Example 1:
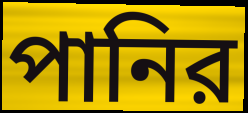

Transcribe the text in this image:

পানির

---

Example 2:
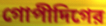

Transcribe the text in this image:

গোপীদিগের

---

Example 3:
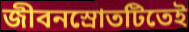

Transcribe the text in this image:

জীবনস্রোতটিতেই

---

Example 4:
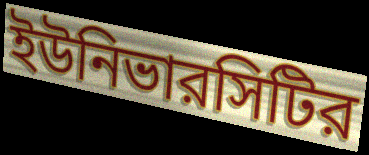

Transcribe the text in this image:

ইউনিভারসিটির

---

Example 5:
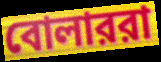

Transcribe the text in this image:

বোলাররা